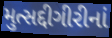
મુત્સદ્દીગીરીનાં